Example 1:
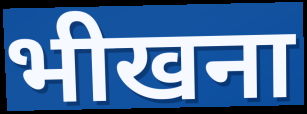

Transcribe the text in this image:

भीखना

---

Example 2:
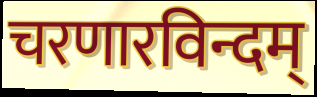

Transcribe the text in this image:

चरणारविन्दम्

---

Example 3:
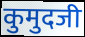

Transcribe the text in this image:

कुमुदजी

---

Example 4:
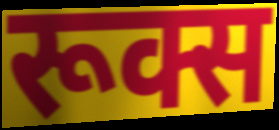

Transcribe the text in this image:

रूक्स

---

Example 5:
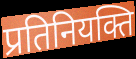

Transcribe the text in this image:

प्रतिनियक्ति